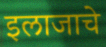
इलाजाचे